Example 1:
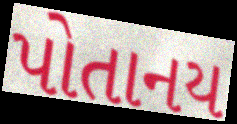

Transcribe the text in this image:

પોતાનય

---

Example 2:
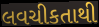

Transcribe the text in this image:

લવચીકતાથી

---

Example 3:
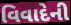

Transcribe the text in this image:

વિવાદેની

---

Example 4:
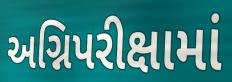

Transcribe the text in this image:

અગ્નિપરીક્ષામાં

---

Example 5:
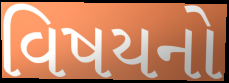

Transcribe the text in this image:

વિષયનો